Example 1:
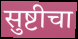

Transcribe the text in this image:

सुष्टीचा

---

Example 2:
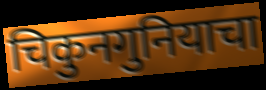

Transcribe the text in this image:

चिकुनगुनियाचा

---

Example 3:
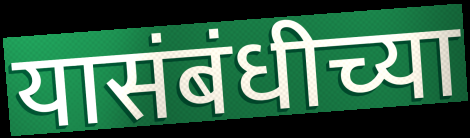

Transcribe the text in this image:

यासंबंधीच्या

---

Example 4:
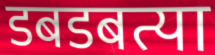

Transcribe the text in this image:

डबडबत्या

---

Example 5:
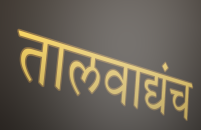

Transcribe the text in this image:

तालवाद्यंच